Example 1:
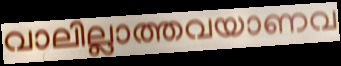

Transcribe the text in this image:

വാലില്ലാത്തവയാണവ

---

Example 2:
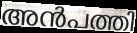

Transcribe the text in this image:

അൻപത്തി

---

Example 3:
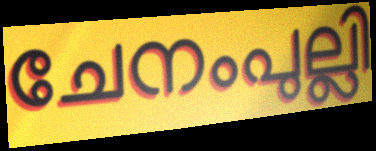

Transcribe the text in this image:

ചേനംപുല്ലി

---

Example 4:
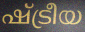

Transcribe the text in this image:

ഷ്ട്രീയ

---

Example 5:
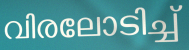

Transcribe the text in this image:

വിരലോടിച്ച്